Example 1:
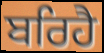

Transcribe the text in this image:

ਬਰਿਹੈ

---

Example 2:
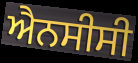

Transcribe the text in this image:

ਐਨਸੀਸੀ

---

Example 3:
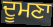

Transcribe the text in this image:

ਦੂਮਣਾ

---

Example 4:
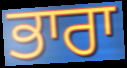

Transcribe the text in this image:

ਭਾਰਾ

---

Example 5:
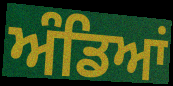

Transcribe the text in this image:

ਅੰਡਿਆਂ